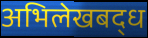
अभिलेखबद्ध